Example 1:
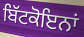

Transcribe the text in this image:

ਬਿੱਟਕੋਇਨਾਂ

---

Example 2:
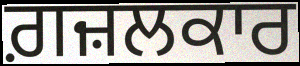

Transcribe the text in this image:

ਗ਼ਜ਼ਲਕਾਰ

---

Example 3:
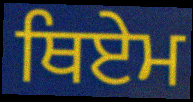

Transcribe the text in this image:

ਥਿਏਮ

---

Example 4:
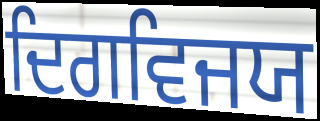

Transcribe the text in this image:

ਦਿਗਵਿਜਯ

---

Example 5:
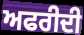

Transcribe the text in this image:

ਅਫਰੀਦੀ